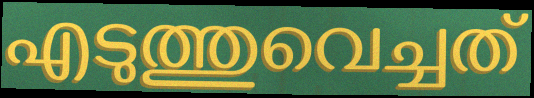
എടുത്തുവെച്ചത്